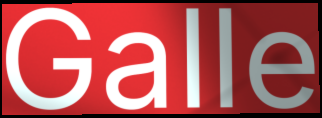
Galle